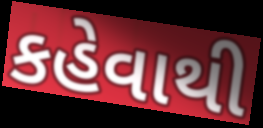
કહેવાથી